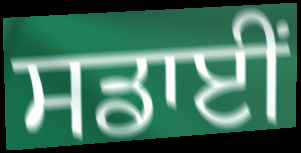
ਸਡਾਈਂ